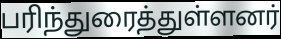
பரிந்துரைத்துள்ளனர்